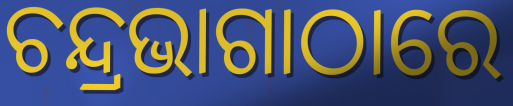
ଚନ୍ଦ୍ରଭାଗାଠାରେ